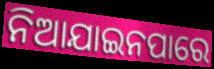
ନିଆଯାଇନପାରେ